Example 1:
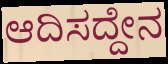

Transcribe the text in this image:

ಆದಿಸದ್ದೇನ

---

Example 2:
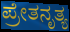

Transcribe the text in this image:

ಪ್ರೇತನೃತ್ಯ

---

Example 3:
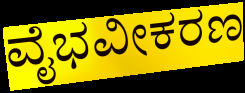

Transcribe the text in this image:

ವೈಭವೀಕರಣ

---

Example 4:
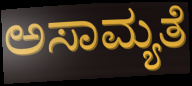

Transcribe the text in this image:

ಅಸಾಮ್ಯತೆ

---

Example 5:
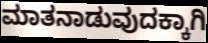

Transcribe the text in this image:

ಮಾತನಾಡುವುದಕ್ಕಾಗಿ